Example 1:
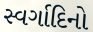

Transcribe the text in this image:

સ્વર્ગાદિનો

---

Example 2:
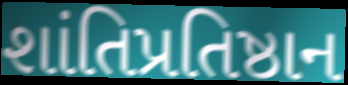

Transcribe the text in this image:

શાંતિપ્રતિષ્ઠાન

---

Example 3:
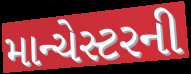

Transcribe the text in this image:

માન્ચેસ્ટરની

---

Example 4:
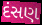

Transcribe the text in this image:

દંસણ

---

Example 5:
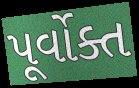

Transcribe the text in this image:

પૂર્વોક્ત